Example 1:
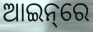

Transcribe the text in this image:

ଆଇନ୍‌ରେ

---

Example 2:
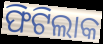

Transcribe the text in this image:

ଫିଟିଲାକ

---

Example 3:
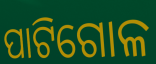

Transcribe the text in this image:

ପାଟିଗୋଳ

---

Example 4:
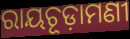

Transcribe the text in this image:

ରାୟଚୂଡ଼ାମଣୀ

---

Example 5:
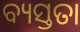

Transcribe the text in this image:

ବ୍ୟସ୍ତତା